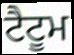
ਟੈਟੂਮ